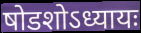
षोडशोऽध्यायः